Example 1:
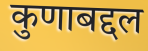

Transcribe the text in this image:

कुणाबद्दल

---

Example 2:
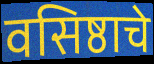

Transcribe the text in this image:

वसिष्ठाचे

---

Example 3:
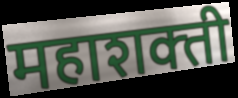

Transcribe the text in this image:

महाशक्‍ती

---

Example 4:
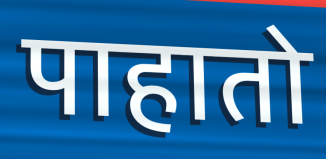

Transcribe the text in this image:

पाहातो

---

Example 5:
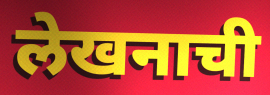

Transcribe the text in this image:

लेखनाची